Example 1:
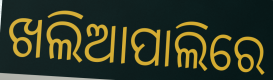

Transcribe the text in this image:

ଖଲିଆପାଲିରେ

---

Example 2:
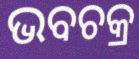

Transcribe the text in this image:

ଭବଚକ୍ର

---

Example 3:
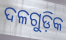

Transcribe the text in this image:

ଦଳଗୁଡ଼ିକ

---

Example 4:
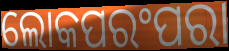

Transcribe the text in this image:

ଲୋକପରଂପରା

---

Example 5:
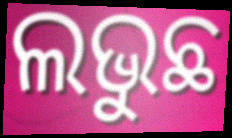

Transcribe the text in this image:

ଲଭୁଛ